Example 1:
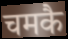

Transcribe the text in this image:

चमकै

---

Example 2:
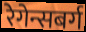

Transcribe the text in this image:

रेगेन्सबर्ग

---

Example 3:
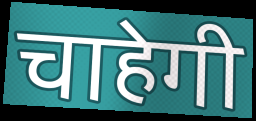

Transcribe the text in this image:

चाहेगी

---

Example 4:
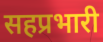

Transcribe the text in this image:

सहप्रभारी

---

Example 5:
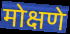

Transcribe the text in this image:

मोक्षणे